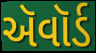
ઍવૉર્ડ